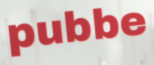
pubbe